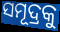
ସମୂଦ୍ରକୁ